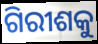
ଗିରୀଶକୁ